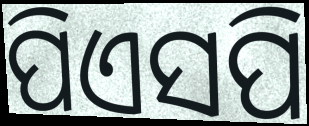
ପିଏସପି